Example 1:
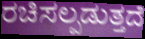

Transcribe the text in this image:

ರಚಿಸಲ್ಪಡುತ್ತದೆ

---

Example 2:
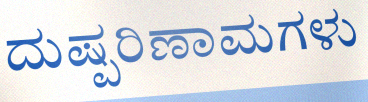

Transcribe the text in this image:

ದುಷ್ಪರಿಣಾಮಗಳು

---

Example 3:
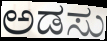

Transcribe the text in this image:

ಅಡಸು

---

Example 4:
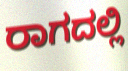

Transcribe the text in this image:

ರಾಗದಲ್ಲಿ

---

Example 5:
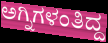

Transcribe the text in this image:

ಅಗ್ನಿಗಳಂತಿದ್ದ